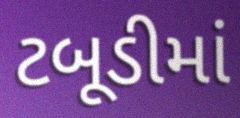
ટબૂડીમાં